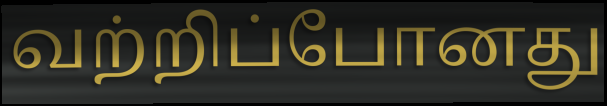
வற்றிப்போனது